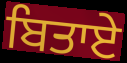
ਬਿਤਾਏ